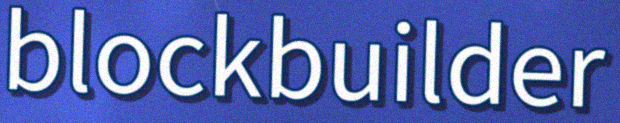
blockbuilder